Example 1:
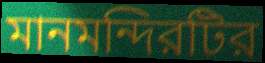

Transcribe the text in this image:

মানমন্দিরটির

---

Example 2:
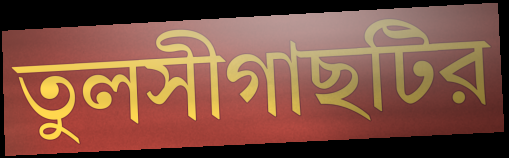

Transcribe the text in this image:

তুলসীগাছটির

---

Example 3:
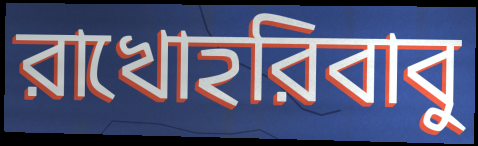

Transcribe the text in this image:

রাখোহরিবাবু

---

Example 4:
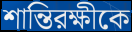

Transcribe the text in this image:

শান্তিরক্ষীকে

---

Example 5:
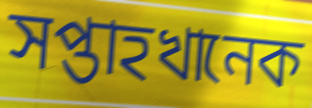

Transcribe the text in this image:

সপ্তাহখানেক